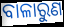
ବାଳାରୁଣ